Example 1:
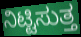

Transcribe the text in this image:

ನಿಟ್ಟಿಸುತ್ತ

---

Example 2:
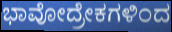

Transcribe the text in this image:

ಭಾವೋದ್ರೇಕಗಳಿಂದ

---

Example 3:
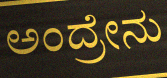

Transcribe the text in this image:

ಅಂದ್ರೇನು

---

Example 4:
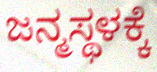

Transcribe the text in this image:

ಜನ್ಮಸ್ಥಳಕ್ಕೆ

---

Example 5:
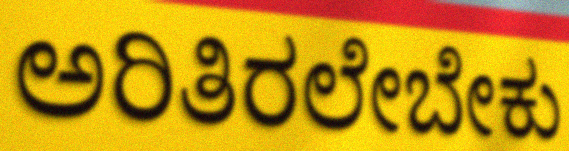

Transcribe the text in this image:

ಅರಿತಿರಲೇಬೇಕು